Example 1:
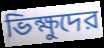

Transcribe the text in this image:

ভিক্ষুদের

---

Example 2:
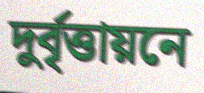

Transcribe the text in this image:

দুর্বৃত্তায়নে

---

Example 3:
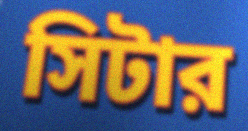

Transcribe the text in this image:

সিটার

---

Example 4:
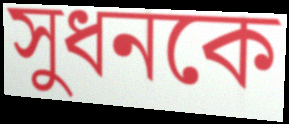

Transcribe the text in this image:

সুধনকে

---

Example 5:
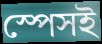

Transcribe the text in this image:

স্পেসই